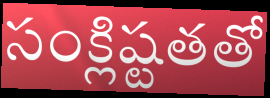
సంక్లిష్టతతో